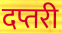
दप्तरी